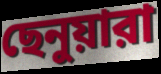
ছেনুয়ারা